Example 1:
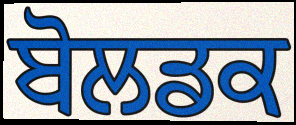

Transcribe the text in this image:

ਬੋਲਡਕ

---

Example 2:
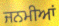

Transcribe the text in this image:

ਜਨਮੀਆਂ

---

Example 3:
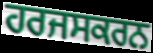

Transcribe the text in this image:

ਹਰਜਸਕਰਨ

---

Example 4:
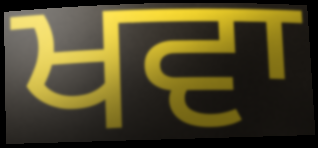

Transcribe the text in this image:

ਖਵਾ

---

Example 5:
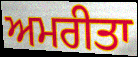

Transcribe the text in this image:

ਅਮਰੀਤਾ